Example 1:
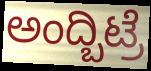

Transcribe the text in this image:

ಅಂದ್ಬಿಟ್ರೆ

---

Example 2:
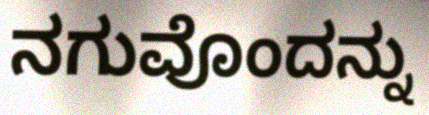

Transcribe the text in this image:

ನಗುವೊಂದನ್ನು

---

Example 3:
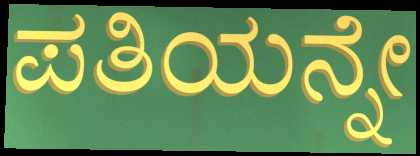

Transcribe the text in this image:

ಪತಿಯನ್ನೇ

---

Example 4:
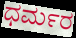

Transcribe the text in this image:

ಧರ್ಮರ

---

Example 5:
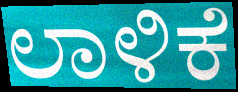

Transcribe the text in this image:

ಲಾಳಿಕೆ